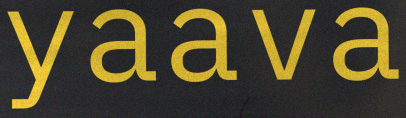
yaava